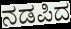
ನಡಪಿದ